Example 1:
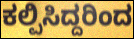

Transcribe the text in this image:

ಕಲ್ಪಿಸಿದ್ದರಿಂದ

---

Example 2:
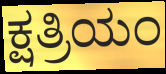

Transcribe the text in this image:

ಕ್ಷತ್ರಿಯಂ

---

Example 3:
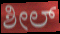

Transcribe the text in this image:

ಶೀಲ್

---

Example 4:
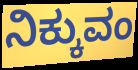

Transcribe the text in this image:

ನಿಕ್ಕುವಂ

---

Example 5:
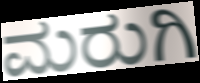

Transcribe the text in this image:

ಮರುಗಿ